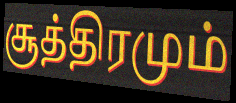
சூத்திரமும்